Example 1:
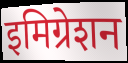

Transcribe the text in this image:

इमिग्रेशन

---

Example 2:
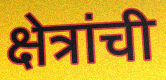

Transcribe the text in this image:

क्षेत्रांची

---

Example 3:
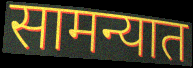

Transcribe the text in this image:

सामन्यात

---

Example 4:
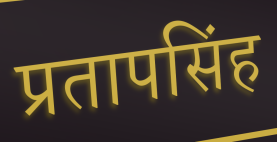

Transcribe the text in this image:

प्रतापसिंह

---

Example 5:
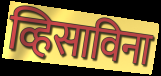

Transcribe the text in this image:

व्हिसाविना